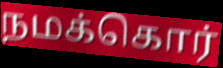
நமக்கொர்